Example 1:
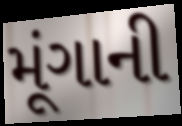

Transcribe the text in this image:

મૂંગાની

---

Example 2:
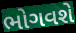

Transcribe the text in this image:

ભોગવશે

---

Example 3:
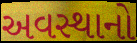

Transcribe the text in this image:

અવસ્થાનો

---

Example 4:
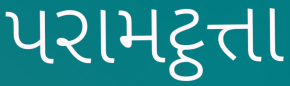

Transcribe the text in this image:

પરામટ્ઠત્તા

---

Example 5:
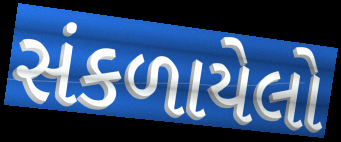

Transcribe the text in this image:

સંકળાયેલો